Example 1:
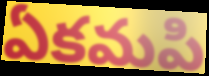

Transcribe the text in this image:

ఏకమపి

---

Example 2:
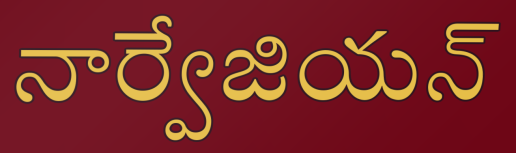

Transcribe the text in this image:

నార్వేజియన్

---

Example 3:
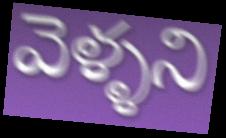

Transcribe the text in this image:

వెళ్ళని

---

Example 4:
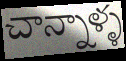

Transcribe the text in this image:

చాన్నాళ్ళ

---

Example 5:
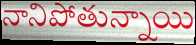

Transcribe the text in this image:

నానిపోతున్నాయి